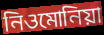
নিওমোনিয়া